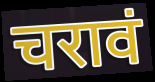
चरावं